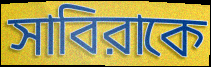
সাবিরাকে